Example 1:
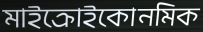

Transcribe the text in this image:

মাইক্রোইকোনমিক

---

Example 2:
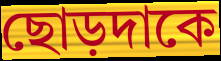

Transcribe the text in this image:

ছোড়দাকে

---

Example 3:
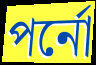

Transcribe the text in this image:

পর্নো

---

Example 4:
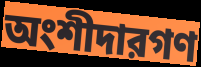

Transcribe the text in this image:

অংশীদারগণ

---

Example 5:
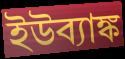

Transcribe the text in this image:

ইউব্যাঙ্ক